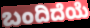
ಬಂದಿದೆಯೆ